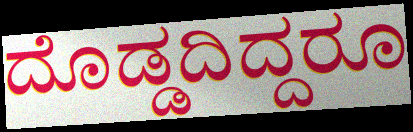
ದೊಡ್ಡದಿದ್ದರೂ